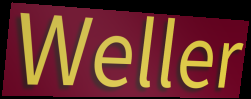
Weller